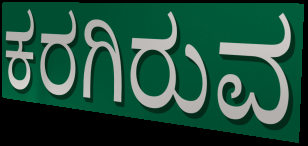
ಕರಗಿರುವ